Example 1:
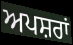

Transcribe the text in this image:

ਅਪਸ਼ਰਾਂ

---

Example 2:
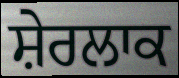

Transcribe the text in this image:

ਸ਼ੇਰਲਾਕ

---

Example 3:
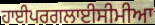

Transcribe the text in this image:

ਹਾਈਪਰਗਲਾਈਸੀਮੀਆ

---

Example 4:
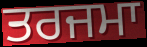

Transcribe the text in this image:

ਤਰਜਮਾ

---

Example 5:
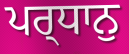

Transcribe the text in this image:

ਪਰ੍ਧਾਨੁ